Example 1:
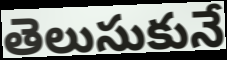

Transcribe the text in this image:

తెలుసుకునే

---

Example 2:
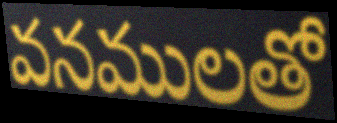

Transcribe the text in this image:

వనములతో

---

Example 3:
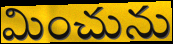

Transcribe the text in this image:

మించును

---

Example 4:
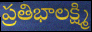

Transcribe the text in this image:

ప్రతిభాలక్ష్మి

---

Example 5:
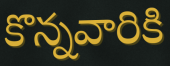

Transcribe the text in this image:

కొన్నవారికి